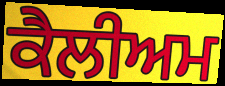
ਕੈਲੀਅਮ